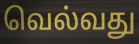
வெல்வது